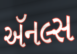
ઍનલ્સ